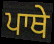
ਪਾਥੇ